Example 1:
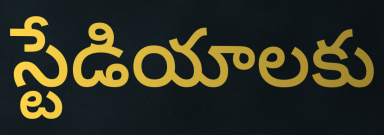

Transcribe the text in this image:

స్టేడియాలకు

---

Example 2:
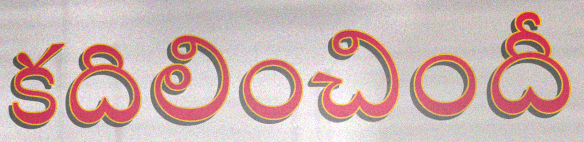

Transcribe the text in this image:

కదిలించిందీ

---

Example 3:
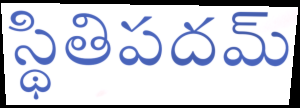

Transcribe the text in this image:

స్థితిపదమ్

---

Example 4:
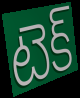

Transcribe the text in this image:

టెక్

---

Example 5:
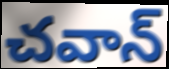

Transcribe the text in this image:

చవాన్